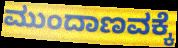
ಮುಂದಾಣವಕ್ಕೆ